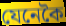
যেনেকৈ